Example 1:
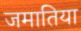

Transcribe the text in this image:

जमातिया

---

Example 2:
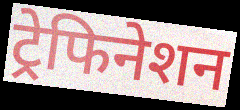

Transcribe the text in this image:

ट्रेफिनेशन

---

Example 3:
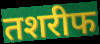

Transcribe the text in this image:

तशरीफ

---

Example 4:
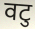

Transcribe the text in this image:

वटु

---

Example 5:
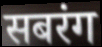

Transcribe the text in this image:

सबरंग